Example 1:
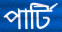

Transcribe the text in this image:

পার্টি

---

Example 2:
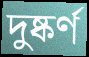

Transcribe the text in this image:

দুষ্কর্ণ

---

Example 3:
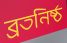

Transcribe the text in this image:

ব্রতনিষ্ঠ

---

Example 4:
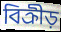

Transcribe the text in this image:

বিক্রীড়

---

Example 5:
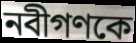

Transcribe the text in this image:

নবীগণকে